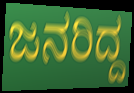
ಜನರಿದ್ದ